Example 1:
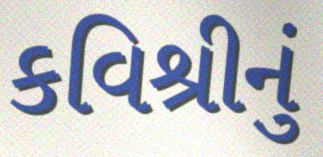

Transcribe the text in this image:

કવિશ્રીનું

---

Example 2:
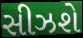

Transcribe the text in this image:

સીઝશે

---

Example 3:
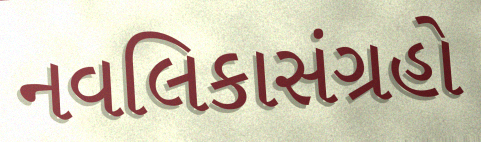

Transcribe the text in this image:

નવલિકાસંગ્રહો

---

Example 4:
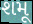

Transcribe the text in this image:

શમૂ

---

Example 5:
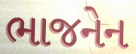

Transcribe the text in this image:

ભાજનેન